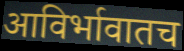
आविर्भावातच